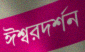
ঈশ্বরদর্শন